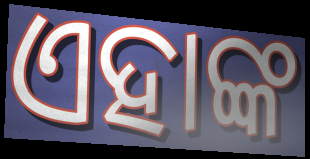
ଏହାଙ୍କ